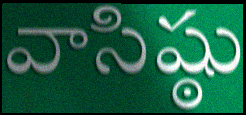
వాసిష్ఠు